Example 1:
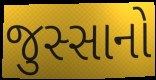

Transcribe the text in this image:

જુસ્સાનો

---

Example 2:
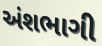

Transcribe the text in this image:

અંશભાગી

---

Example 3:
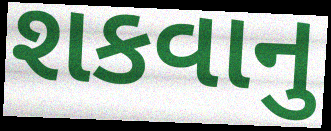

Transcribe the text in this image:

શકવાનુ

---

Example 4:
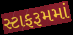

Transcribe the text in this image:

સ્ટાફરૂમમાં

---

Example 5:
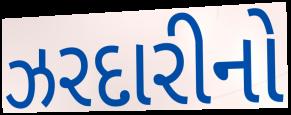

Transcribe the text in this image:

ઝરદારીનો